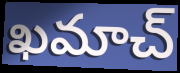
ఖమాచ్